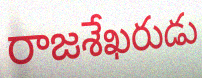
రాజశేఖరుడు